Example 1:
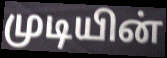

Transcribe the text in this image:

முடியின்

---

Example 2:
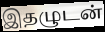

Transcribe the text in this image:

இதழுடன்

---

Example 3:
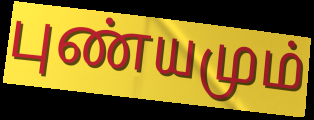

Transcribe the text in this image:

புண்யமும்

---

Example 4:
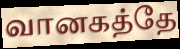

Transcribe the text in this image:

வானகத்தே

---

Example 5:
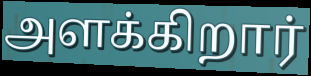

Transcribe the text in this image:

அளக்கிறார்